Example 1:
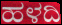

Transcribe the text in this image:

ಹಳದಿ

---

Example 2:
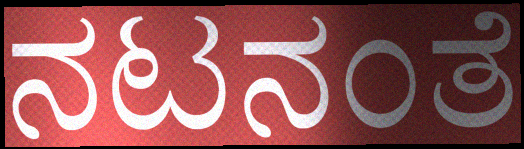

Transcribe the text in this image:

ನಟನಂತೆ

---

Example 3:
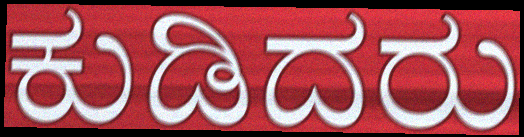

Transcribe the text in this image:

ಕುಡಿದರು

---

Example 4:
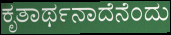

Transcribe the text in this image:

ಕೃತಾರ್ಥನಾದೆನೆಂದು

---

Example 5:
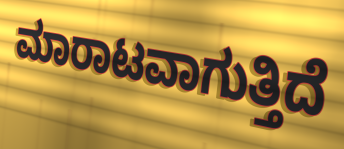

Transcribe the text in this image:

ಮಾರಾಟವಾಗುತ್ತಿದೆ